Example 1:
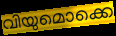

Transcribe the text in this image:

വിയുമൊക്കെ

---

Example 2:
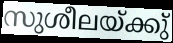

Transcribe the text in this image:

സുശീലയ്ക്കു്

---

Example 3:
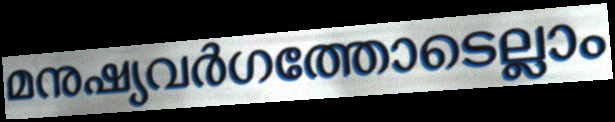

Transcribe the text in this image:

മനുഷ്യവർഗത്തോടെല്ലാം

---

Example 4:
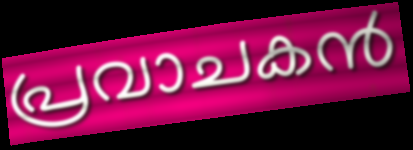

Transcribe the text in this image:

പ്രവാചകൻ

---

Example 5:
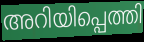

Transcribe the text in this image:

അറിയിപ്പെത്തി